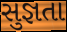
સુજ્ઞતા